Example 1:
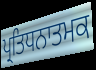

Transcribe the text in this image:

ਪ੍ਰਤਿਧਨਾਤਮਕ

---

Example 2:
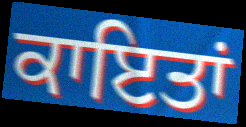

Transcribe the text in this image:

ਕਾਇਤਾਂ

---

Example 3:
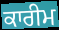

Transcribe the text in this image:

ਕਾਰੀਮ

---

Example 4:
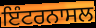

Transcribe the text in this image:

ਇੰਟਰਨਾਸਲ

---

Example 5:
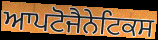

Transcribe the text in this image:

ਆਪਟੋਜੈਨੇਟਿਕਸ